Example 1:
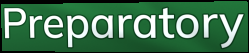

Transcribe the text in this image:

Preparatory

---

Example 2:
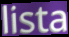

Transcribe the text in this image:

lista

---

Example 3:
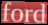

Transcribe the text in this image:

ford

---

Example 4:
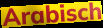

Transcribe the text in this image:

Arabisch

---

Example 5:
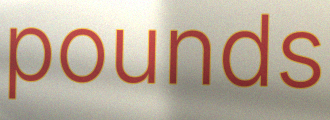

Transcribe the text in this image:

pounds